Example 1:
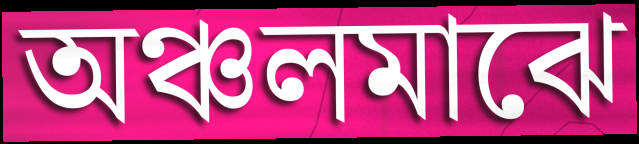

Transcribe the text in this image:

অঞ্চলমাঝে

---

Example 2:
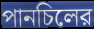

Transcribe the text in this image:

পানচিলের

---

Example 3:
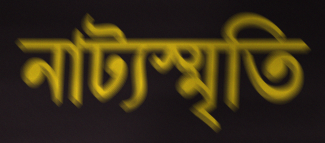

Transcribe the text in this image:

নাট্যস্মৃতি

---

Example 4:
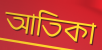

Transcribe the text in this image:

আতিকা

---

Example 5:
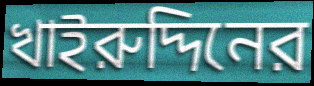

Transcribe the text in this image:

খাইরুদ্দিনের